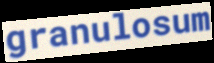
granulosum